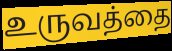
உருவத்தை